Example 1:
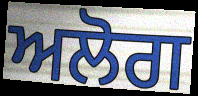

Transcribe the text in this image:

ਅਲੋਗ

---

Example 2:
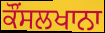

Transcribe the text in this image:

ਕੌਂਸਲਖਾਨਾ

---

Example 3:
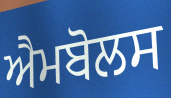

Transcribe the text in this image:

ਐਮਬੋਲਸ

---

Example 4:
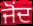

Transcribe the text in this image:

ਜੋਂਦ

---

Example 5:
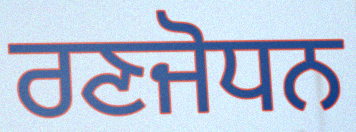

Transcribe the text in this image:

ਰਣਜੋਧਨ